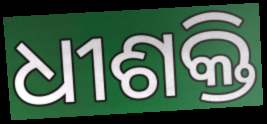
ଧୀଶକ୍ତି